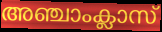
അഞ്ചാംക്ലാസ്